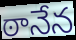
ఠానేన